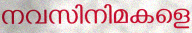
നവസിനിമകളെ